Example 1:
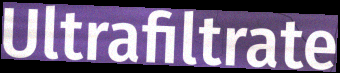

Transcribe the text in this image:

Ultrafiltrate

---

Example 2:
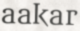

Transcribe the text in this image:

aakar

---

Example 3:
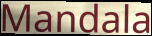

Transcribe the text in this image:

Mandala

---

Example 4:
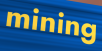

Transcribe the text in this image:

mining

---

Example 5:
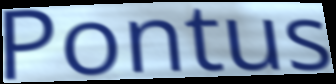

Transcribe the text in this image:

Pontus